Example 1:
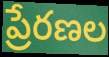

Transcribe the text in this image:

ప్రేరణల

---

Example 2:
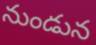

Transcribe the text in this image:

నుండున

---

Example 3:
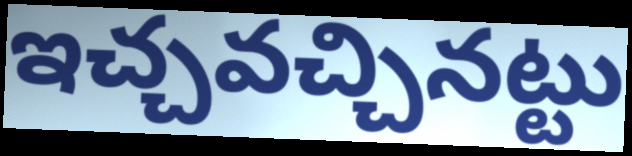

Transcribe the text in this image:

ఇచ్చవచ్చినట్టు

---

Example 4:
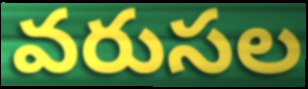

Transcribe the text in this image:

వరుసల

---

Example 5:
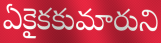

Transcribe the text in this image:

ఏకైకకుమారుని